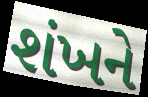
શંખને